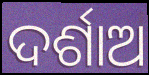
ଦର୍ଶାଅ